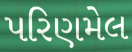
પરિણમેલ